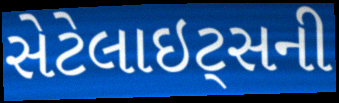
સેટેલાઇટ્સની